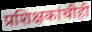
प्रशिक्षकांचीही